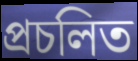
প্ৰচলিত